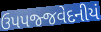
ઉપપજ્જવેદનીયં